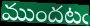
ముందటఁ